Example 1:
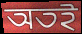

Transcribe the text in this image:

অতই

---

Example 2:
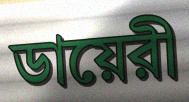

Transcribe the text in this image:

ডায়েরী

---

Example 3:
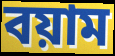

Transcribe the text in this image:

বয়াম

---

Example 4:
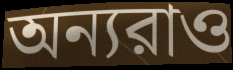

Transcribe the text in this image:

অন্যরাও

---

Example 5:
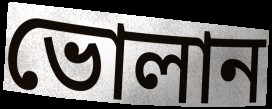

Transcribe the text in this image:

ভোলান